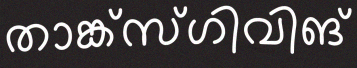
താങ്ക്സ്ഗിവിങ്